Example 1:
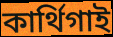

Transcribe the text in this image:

কার্থিগাই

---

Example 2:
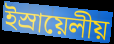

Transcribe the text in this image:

ইস্রায়েলীয়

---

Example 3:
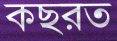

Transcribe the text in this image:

কছরত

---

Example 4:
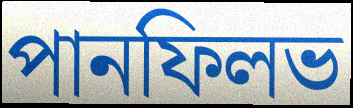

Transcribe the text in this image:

পানফিলভ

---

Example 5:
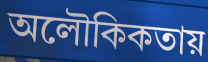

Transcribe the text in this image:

অলৌকিকতায়